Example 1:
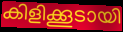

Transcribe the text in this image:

കിളിക്കൂടായി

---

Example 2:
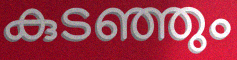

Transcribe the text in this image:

കുടഞ്ഞും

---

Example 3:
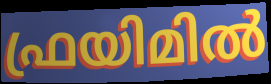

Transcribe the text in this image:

ഫ്രയിമിൽ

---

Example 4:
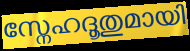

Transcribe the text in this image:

സ്നേഹദൂതുമായി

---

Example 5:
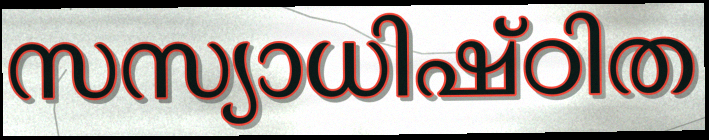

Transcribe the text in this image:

സസ്യാധിഷ്ഠിത